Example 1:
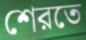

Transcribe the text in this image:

শেরতে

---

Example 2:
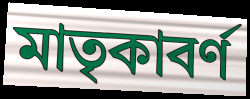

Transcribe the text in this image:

মাতৃকাবর্ণ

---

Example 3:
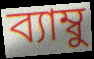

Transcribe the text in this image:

ব্যাম্বু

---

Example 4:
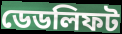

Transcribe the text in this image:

ডেডলিফট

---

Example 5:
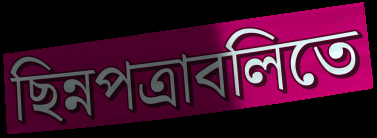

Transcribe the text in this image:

ছিন্নপত্রাবলিতে